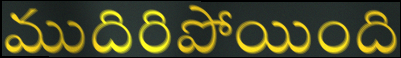
ముదిరిపోయింది